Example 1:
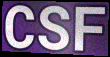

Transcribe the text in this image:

CSF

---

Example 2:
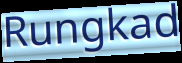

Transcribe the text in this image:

Rungkad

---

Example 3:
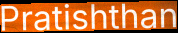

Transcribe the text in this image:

Pratishthan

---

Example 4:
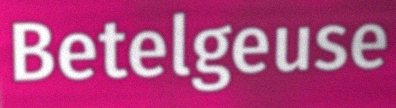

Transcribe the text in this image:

Betelgeuse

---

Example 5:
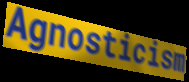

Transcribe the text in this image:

Agnosticism